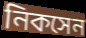
নিকসেন